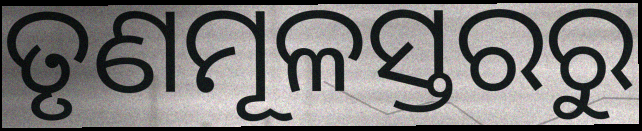
ତୃଣମୂଳସ୍ତରରୁ